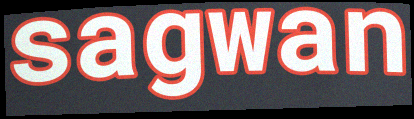
sagwan